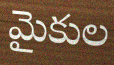
మైకుల